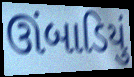
ઊંબાડિયું